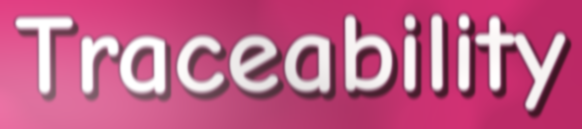
Traceability